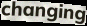
changing